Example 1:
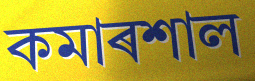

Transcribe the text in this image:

কমাৰশাল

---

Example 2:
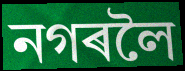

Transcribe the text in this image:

নগৰলৈ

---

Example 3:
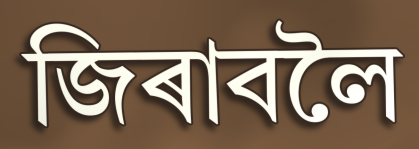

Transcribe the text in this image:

জিৰাবলৈ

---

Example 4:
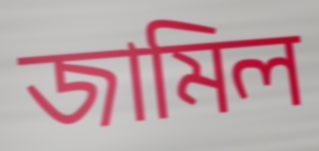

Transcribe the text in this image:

জামিল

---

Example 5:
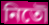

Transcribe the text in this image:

নিতৌ